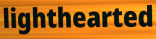
lighthearted